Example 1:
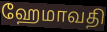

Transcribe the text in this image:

ஹேமாவதி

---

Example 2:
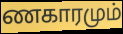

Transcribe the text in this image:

ணகாரமும்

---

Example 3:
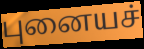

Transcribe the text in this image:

புனையச்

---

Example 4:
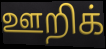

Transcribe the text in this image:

ஊறிக்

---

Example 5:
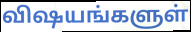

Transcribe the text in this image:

விஷயங்களுள்